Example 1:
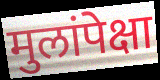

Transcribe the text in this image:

मुलांपेक्षा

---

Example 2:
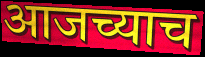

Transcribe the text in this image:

आजच्याच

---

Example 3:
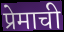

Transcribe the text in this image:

प्रेमाची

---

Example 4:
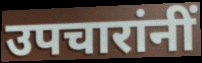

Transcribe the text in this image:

उपचारांनीं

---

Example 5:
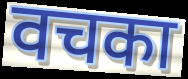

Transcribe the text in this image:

वचका